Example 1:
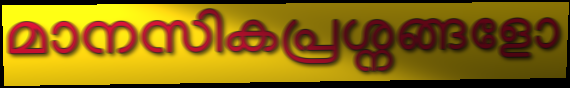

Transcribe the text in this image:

മാനസികപ്രശ്നങ്ങളോ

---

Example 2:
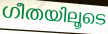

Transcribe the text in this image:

ഗീതയിലൂടെ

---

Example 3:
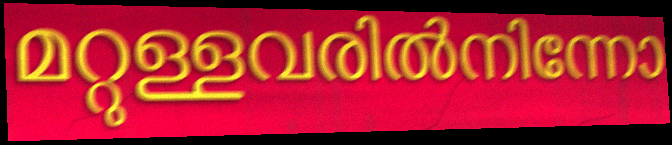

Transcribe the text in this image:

മറ്റുള്ളവരിൽനിന്നോ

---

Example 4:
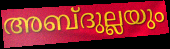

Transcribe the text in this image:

അബ്ദുല്ലയും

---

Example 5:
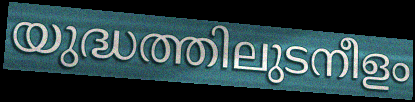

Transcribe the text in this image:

യുദ്ധത്തിലുടനീളം